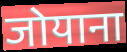
जोयाना